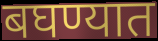
बघण्यात